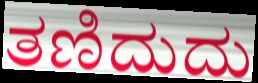
ತಣಿದುದು